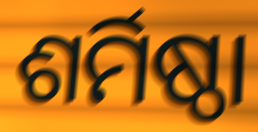
ଶର୍ମିଷ୍ଠା